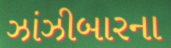
ઝાંઝીબારના